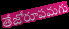
తేజోరూపమగు